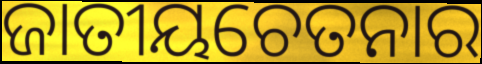
ଜାତୀୟଚେତନାର